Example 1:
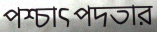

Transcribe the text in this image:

পশ্চাৎপদতার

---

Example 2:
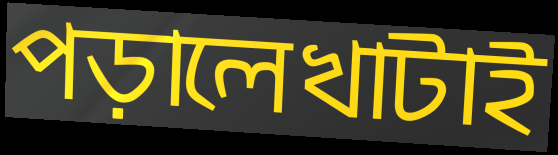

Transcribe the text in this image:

পড়ালেখাটাই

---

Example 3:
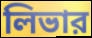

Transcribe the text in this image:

লিভার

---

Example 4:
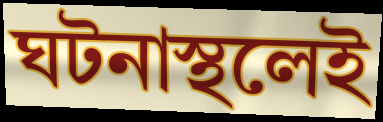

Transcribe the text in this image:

ঘটনাস্থলেই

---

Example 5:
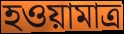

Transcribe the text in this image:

হওয়ামাত্র